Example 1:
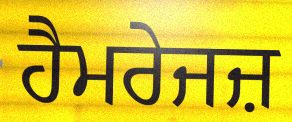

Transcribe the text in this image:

ਹੈਮਰੇਜਜ਼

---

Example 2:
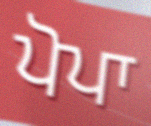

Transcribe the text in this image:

ਪੋਪਾ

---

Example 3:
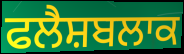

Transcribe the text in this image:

ਫਲੈਸ਼ਬਲਾਕ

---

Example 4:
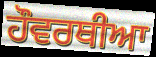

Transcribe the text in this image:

ਹੌਵਰਥੀਆ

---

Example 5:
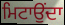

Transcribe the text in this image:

ਮਿਟਾਉਂਦਾ